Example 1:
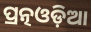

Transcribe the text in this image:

ପ୍ରତ୍ନଓଡ଼ିଆ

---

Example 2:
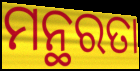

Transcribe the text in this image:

ମନ୍ଥରତା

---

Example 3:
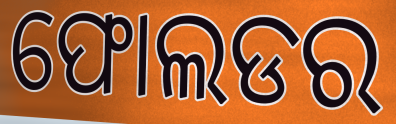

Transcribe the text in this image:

ଫୋଲଡର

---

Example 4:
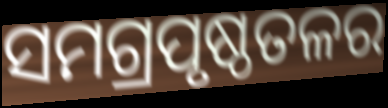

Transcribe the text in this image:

ସମଗ୍ରପୃଷ୍ଠତଳର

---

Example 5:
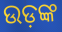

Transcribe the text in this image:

ଉଡ଼ଙ୍କ